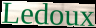
Ledoux